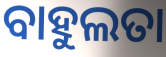
ବାହୁଲତା